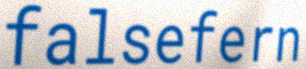
falsefern